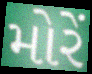
મોરેં